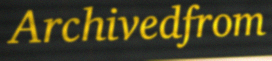
Archivedfrom